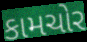
કામચોર